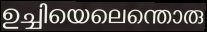
ഉച്ചിയെലെന്തൊരു